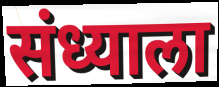
संध्याला